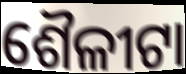
ଶୈଳୀଟା